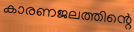
കാരണജലത്തിന്റെ